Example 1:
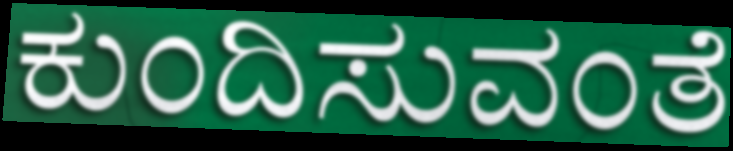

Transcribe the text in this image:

ಕುಂದಿಸುವಂತೆ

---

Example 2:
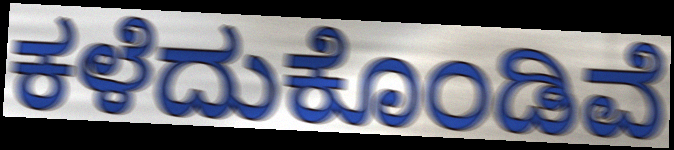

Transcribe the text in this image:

ಕಳೆದುಕೊಂಡಿವೆ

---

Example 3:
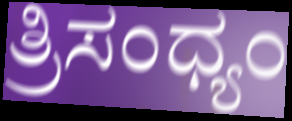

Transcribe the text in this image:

ತ್ರಿಸಂಧ್ಯಂ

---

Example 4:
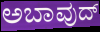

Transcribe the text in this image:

ಅಬಾವುದ್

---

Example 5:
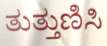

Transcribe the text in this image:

ತುತ್ತುಣಿಸಿ